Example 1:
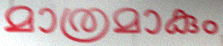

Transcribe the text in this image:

മാത്രമാകും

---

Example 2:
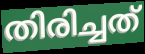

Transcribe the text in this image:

തിരിച്ചത്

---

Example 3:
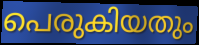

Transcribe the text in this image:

പെരുകിയതും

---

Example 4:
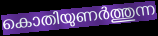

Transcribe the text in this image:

കൊതിയുണർത്തുന്ന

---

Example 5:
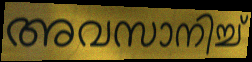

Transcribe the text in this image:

അവസാനിച്ച്